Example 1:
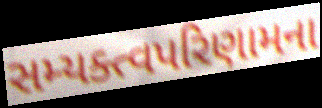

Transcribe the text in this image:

સમ્યક્ત્વપરિણામના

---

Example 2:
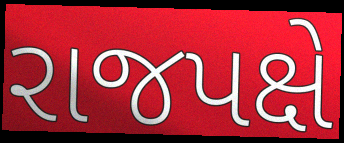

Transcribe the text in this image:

રાજપક્ષે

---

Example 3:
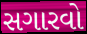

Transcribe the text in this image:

સગારવો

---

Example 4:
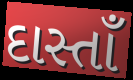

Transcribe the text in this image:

દાસ્તાઁ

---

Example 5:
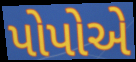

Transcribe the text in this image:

પોપોએ